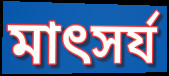
মাৎসর্য